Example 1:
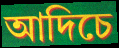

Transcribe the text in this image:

আদিচে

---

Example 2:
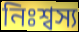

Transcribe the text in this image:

নিঃশ্বস্য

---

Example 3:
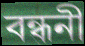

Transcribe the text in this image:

বন্ধনী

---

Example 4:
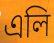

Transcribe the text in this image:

এলি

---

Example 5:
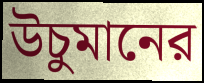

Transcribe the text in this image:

উচুমানের